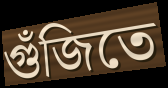
গুঁজিতে